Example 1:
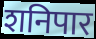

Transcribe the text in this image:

शनिपार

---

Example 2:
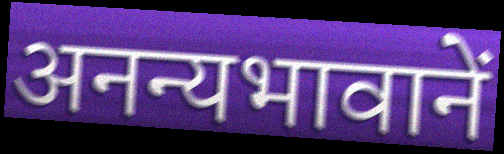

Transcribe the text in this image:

अनन्यभावानें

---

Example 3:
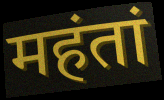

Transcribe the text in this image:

महंतां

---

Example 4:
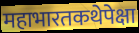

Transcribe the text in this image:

महाभारतकथेपेक्षा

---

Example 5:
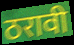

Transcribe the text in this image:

ठरावी